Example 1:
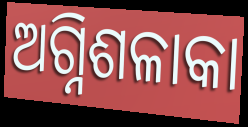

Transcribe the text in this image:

ଅଗ୍ନିଶଳାକା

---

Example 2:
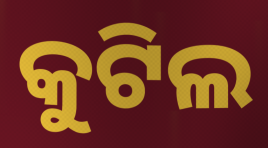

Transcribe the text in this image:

କୁଟିଲ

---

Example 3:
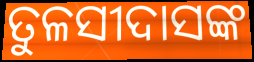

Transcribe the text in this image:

ତୁଳସୀଦାସଙ୍କ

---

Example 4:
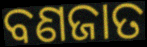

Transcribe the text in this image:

ବଣଜାତ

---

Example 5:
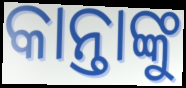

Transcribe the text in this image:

କାନ୍ତାଙ୍କୁ